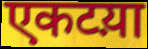
एकटय़ा